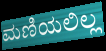
ಮಣಿಯಲಿಲ್ಲ